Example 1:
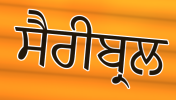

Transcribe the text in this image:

ਸੈਰੀਬ੍ਰਲ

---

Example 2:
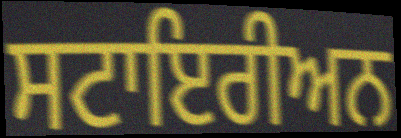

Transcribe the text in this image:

ਸਟਾਇਰੀਅਨ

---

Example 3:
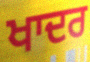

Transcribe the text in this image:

ਖਾਦਰ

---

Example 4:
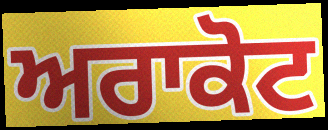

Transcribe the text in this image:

ਅਰਾਕੋਟ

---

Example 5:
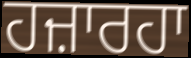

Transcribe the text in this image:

ਹਜ਼ਾਰਹਾ